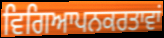
ਵਿਗਿਆਪਨਕਰਤਾਵਾਂ